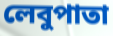
লেবুপাতা